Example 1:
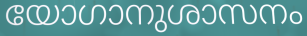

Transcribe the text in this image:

യോഗാനുശാസനം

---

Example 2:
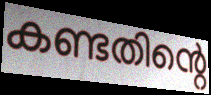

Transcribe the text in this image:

കണ്ടതിന്റെ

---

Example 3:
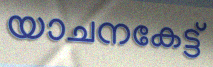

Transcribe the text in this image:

യാചനകേട്ട്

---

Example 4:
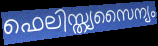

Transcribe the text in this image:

ഫെലിസ്ത്യസൈന്യം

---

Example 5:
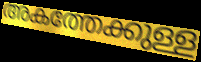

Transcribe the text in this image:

അകത്തേക്കുള്ള